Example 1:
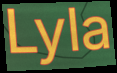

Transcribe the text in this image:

Lyla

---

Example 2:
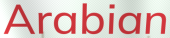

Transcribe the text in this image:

Arabian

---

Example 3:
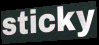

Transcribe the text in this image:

sticky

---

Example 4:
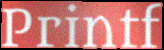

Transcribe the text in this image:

Printf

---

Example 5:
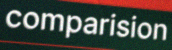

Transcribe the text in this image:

comparision